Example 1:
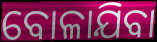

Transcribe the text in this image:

ବୋଳାଯିବା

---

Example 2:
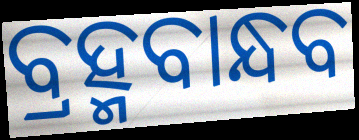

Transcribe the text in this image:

ବ୍ରହ୍ମବାନ୍ଧବ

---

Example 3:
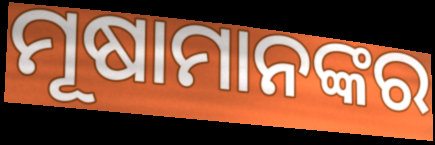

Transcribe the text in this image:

ମୂଷାମାନଙ୍କର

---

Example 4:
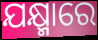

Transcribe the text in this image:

ଯକ୍ଷ୍ମାରେ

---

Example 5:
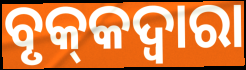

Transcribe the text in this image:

ବୃକ୍‌କଦ୍ଵାରା